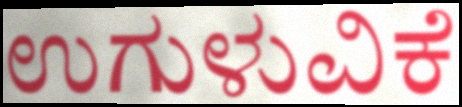
ಉಗುಳುವಿಕೆ